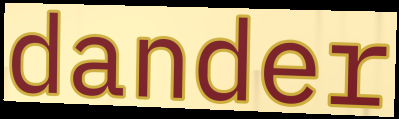
dander